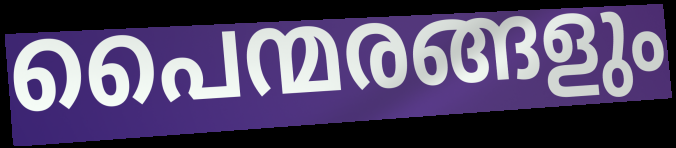
പൈന്മരങ്ങളും